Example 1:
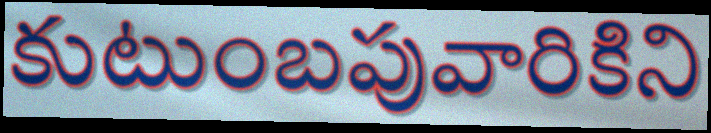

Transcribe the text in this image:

కుటుంబపువారికిని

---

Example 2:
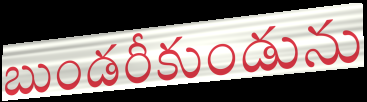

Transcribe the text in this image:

బుండరీకుండును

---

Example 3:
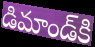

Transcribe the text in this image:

డిమాండ్‌కి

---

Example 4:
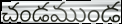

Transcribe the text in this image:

చండముండ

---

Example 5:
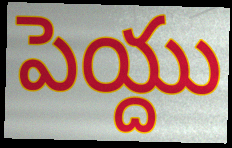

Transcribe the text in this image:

పెయ్దు